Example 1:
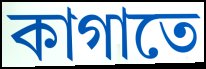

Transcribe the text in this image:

কাগাতে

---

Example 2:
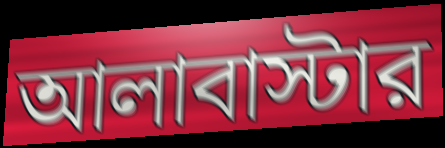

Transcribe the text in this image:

আলাবাস্টার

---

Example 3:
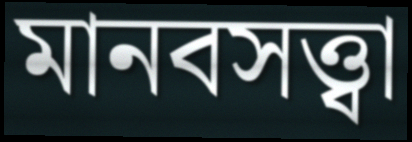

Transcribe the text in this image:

মানবসত্ত্বা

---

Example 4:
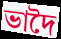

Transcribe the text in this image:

ভাদৈ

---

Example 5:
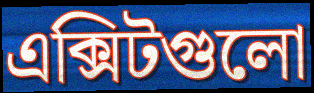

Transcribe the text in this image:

এক্সিটগুলো